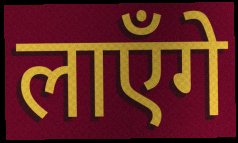
लाएँगे